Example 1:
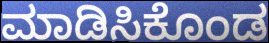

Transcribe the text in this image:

ಮಾಡಿಸಿಕೊಂಡ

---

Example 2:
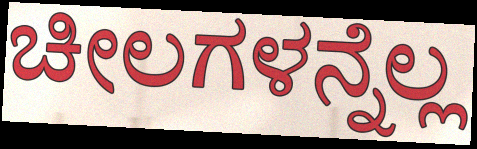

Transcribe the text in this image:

ಚೀಲಗಳನ್ನೆಲ್ಲ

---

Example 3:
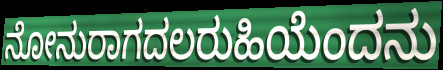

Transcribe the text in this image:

ನೋನುರಾಗದಲರುಹಿಯೆಂದನು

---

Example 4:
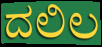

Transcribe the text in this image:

ದಲಿಲ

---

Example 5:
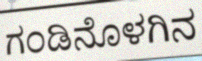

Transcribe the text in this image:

ಗಂಡಿನೊಳಗಿನ